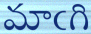
మాఁగి